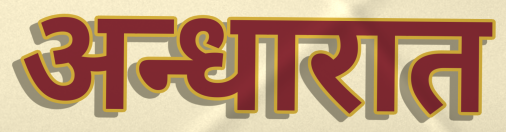
अन्धारात